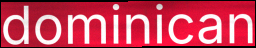
dominican